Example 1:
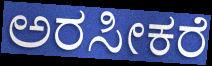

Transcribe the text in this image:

ಅರಸೀಕರೆ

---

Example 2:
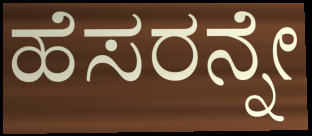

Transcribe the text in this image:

ಹೆಸರನ್ನೇ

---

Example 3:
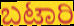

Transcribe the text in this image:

ಬಟಾರಿ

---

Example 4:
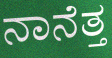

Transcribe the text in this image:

ನಾನೆತ್ತ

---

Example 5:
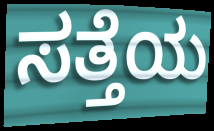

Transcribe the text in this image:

ಸತ್ತೆಯ